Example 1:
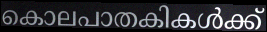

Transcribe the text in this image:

കൊലപാതകികൾക്ക്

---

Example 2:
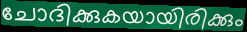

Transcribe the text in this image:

ചോദിക്കുകയായിരിക്കും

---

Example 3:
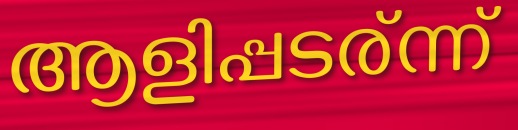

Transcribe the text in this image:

ആളിപ്പടര്ന്ന്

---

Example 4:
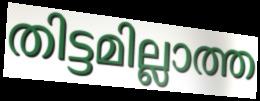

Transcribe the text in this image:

തിട്ടമില്ലാത്ത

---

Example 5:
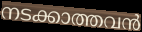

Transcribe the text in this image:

നടക്കാത്തവൻ